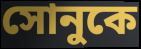
সোনুকে